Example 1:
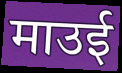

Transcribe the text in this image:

माउई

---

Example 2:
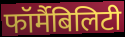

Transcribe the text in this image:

फॉर्मैबिलिटी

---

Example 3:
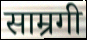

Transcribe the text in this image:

साम्रगी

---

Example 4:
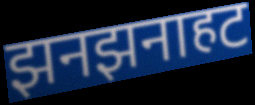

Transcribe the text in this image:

झनझनाहट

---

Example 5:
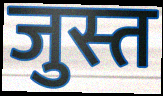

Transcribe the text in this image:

जुस्त